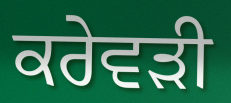
ਕਰੇਵੜੀ